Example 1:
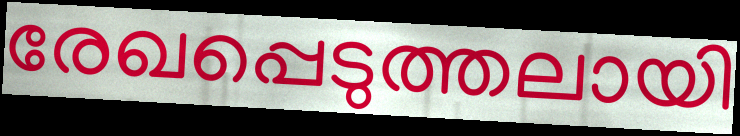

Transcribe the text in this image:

രേഖപ്പെടുത്തലായി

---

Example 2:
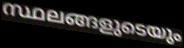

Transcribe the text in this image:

സ്ഥലങ്ങളുടെയും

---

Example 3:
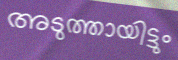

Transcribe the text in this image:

അടുത്തായിട്ടും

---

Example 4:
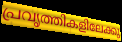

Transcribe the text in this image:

പ്രവൃത്തികളിലേക്കു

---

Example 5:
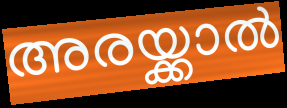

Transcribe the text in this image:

അരയ്ക്കാൽ